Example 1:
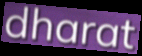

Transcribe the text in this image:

dharat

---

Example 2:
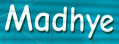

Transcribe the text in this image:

Madhye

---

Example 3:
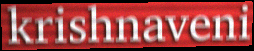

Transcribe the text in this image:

krishnaveni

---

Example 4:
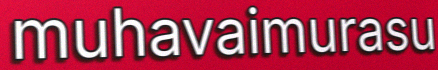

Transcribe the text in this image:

muhavaimurasu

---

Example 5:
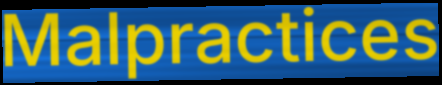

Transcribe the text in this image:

Malpractices